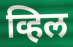
व्हिल